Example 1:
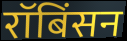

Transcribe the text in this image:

रॉबिंसन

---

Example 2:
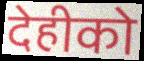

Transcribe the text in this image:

देहीको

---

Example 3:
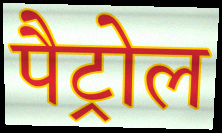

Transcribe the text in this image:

पैट्रोल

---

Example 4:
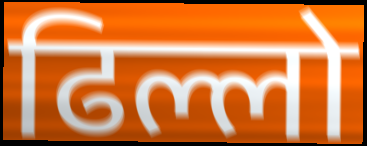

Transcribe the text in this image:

ढिल्लो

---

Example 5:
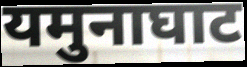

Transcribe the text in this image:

यमुनाघाट